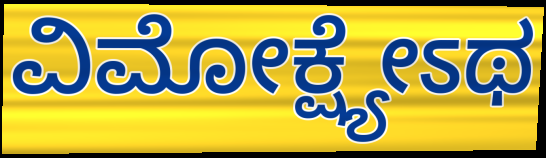
ವಿಮೋಕ್ಷ್ಯೇಽಥ